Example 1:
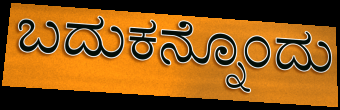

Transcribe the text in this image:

ಬದುಕನ್ನೊಂದು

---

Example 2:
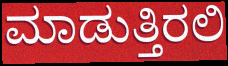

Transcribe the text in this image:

ಮಾಡುತ್ತಿರಲಿ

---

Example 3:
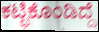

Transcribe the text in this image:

ಕಟ್ಟಿಕೊಂಡಿದ್ದೆ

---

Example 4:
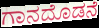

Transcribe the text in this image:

ಗಾನದೊಡನೆ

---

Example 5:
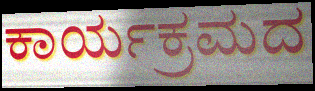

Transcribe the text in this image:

ಕಾರ್ಯಕ್ರಮದ